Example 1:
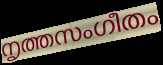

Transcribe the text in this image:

നൃത്തസംഗീതം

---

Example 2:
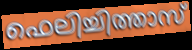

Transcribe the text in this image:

ഫെലിച്ചിത്താസ്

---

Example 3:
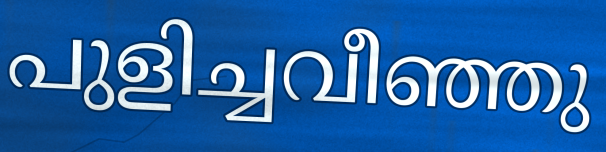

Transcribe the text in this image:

പുളിച്ചവീഞ്ഞു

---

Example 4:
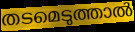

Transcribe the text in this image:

തടമെടുത്താൽ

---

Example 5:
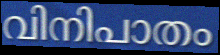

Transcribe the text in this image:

വിനിപാതം